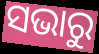
ସଭାରୁ